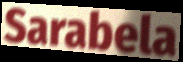
Sarabela